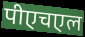
पीएचएल